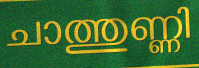
ചാത്തുണ്ണി